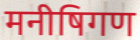
मनीषिगण